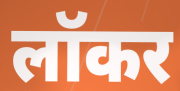
लॉकर